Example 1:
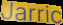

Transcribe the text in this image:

Jarric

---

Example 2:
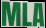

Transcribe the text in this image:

MLA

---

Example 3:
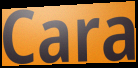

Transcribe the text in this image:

Cara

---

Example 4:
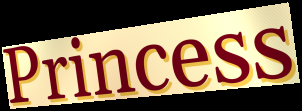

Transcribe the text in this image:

Princess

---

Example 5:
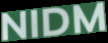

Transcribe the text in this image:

NIDM